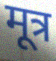
मूत्र